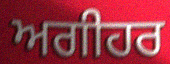
ਅਗੀਹਰ